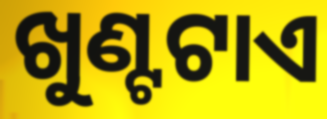
ଖୁଣ୍ଟଟାଏ